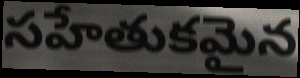
సహేతుకమైన